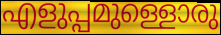
എളുപ്പമുള്ളൊരു